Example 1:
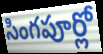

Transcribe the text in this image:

సింగపూర్లో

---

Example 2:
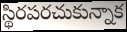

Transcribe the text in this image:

స్థిరపరచుకున్నాక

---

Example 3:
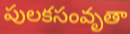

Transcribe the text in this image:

పులకసంవృతా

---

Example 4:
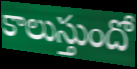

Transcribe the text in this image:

కాలుస్తుందో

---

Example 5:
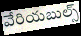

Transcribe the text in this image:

వేరియబుల్స్